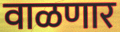
वाळणार